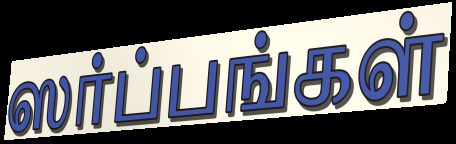
ஸர்ப்பங்கள்